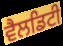
ਵੈਲਡਿਟੀ